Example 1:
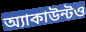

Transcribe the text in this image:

অ্যাকাউন্টও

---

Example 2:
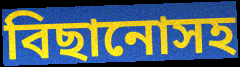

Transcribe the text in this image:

বিছানোসহ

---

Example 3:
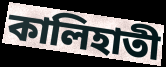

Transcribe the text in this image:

কালিহাতী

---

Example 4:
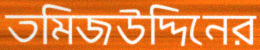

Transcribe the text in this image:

তমিজউদ্দিনের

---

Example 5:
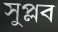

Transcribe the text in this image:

সুপ্লব